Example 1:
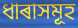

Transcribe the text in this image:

ধাৰাসমূহ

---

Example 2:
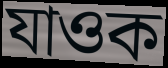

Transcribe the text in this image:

যাওক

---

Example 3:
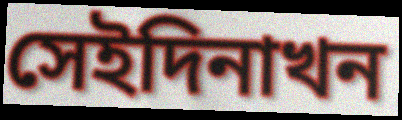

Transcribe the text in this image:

সেইদিনাখন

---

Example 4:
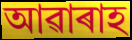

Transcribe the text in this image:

আৱাৰাহ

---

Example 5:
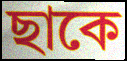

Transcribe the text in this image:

ছাকে